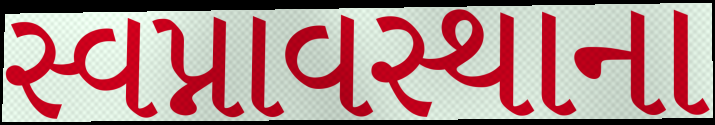
સ્વપ્નાવસ્થાના